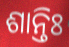
ଶାନ୍ତିଃ